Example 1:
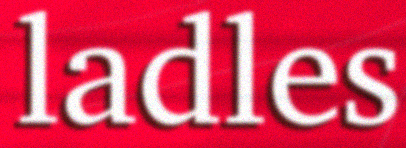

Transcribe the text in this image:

ladles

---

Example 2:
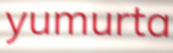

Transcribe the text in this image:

yumurta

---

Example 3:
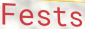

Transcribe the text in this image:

Fests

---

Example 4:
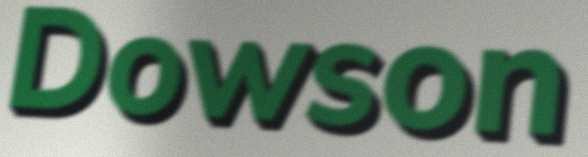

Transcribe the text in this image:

Dowson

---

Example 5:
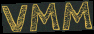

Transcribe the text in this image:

VMM